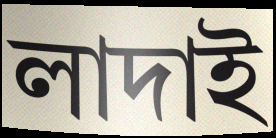
লাদাই